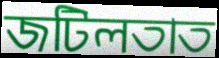
জটিলতাত